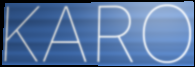
KARO